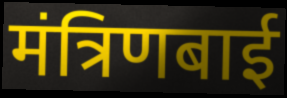
मंत्रिणबाई